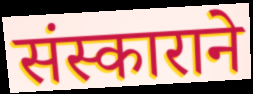
संस्काराने